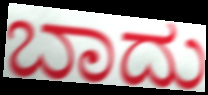
ಬಾದು